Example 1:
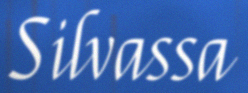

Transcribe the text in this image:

Silvassa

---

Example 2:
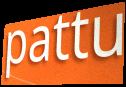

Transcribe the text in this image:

pattu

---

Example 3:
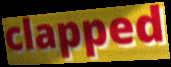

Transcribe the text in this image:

clapped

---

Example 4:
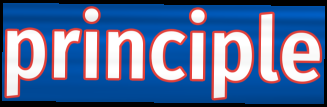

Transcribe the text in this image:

principle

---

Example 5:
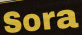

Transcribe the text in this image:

Sora